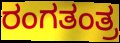
ರಂಗತಂತ್ರ